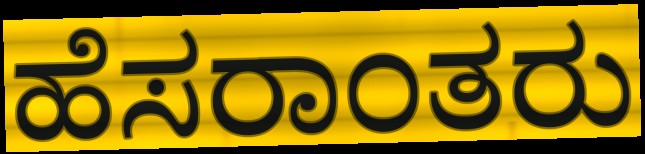
ಹೆಸರಾಂತರು